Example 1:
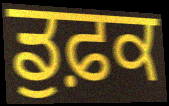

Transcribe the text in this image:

ਡੁਫ਼ਕ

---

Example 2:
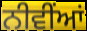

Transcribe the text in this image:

ਨੀਵੀਂਆਂ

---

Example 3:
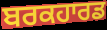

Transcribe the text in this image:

ਬਰਕਹਾਰਡ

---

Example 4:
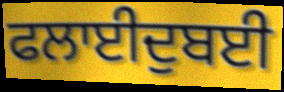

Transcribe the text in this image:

ਫਲਾਈਦੁਬਈ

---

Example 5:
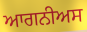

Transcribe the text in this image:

ਆਗਨੀਅਸ